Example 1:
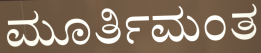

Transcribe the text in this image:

ಮೂರ್ತಿಮಂತ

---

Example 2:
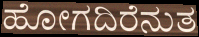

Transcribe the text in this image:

ಹೋಗದಿರೆನುತ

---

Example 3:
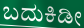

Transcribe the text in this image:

ಬದುಕಿಡೀ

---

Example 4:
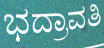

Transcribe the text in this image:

ಭದ್ರಾವತಿ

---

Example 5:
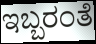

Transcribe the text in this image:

ಇಬ್ಬರಂತೆ